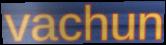
vachun